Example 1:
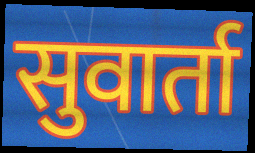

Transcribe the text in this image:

सुवार्ता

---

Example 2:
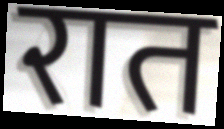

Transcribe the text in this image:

रात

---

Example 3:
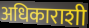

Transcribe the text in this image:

अधिकाराशी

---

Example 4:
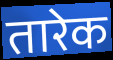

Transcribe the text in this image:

तारेक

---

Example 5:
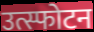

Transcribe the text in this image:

उत्स्फोटन